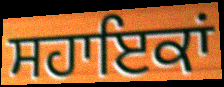
ਸਹਾਇਕਾਂ